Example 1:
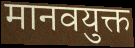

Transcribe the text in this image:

मानवयुक्त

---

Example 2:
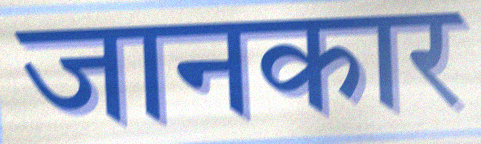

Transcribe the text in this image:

जानकार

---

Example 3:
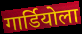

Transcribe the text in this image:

गार्डियोला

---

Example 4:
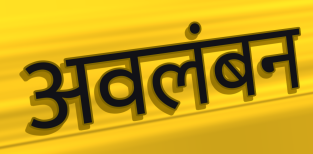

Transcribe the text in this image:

अवलंबन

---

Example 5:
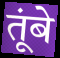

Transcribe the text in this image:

तूंबे